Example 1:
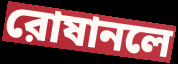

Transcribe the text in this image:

রোষানলে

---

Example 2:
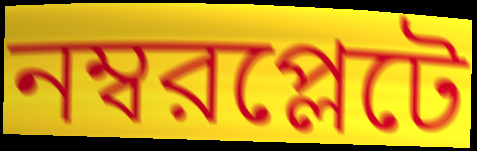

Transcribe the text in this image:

নম্বরপ্লেটে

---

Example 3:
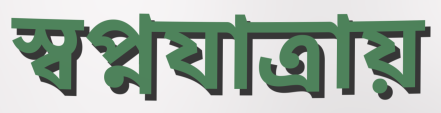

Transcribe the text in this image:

স্বপ্নযাত্রায়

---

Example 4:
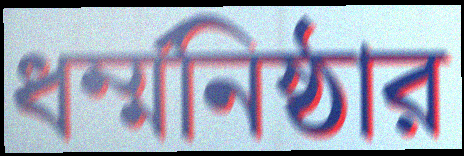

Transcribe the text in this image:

ধর্ম্মনিষ্ঠার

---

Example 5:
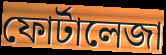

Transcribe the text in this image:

ফোর্টালেজা